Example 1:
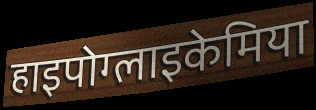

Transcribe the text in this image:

हाइपोग्लाइकेमिया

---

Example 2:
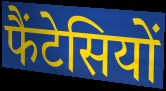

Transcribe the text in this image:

फैंटेसियों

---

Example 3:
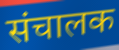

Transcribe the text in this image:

संचालक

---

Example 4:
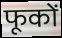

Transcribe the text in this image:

फूकों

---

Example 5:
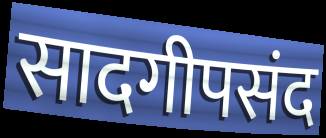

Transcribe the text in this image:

सादगीपसंद